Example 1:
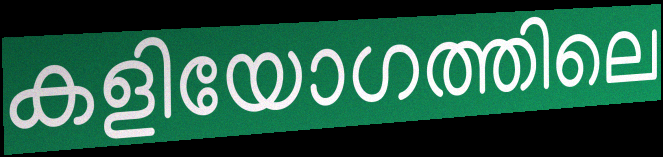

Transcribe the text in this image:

കളിയോഗത്തിലെ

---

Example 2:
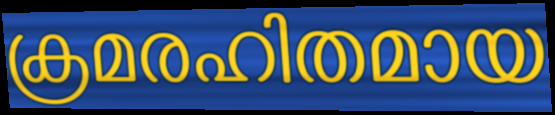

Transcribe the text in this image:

ക്രമരഹിതമായ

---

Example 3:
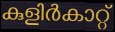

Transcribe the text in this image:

കുളിർകാറ്റ്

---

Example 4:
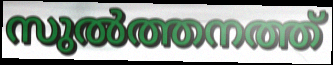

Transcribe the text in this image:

സുൽത്തനത്ത്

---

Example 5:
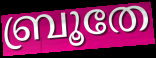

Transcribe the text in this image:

ബ്രൂതേ